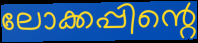
ലോക്കപ്പിന്റെ